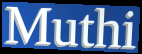
Muthi